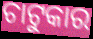
ଚାଟୁକାର